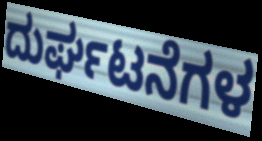
ದುರ್ಘಟನೆಗಳ